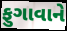
ફુગાવાને